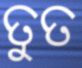
ତୁତ